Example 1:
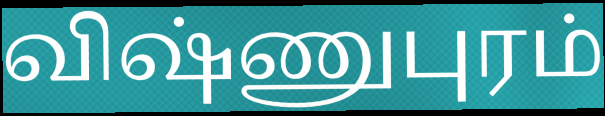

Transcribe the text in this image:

விஷ்ணுபுரம்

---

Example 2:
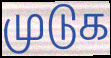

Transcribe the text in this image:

முடுக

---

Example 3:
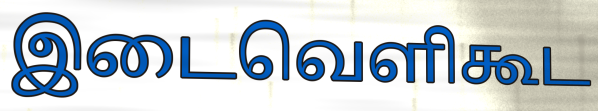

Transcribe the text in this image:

இடைவெளிகூட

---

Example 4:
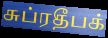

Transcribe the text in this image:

சுப்ரதீபக்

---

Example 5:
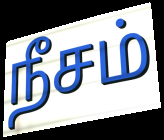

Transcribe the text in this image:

நீசம்